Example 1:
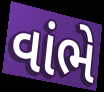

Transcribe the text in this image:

વાંભે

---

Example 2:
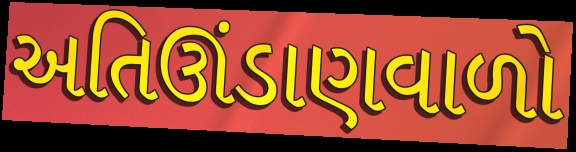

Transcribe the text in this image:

અતિઊંડાણવાળો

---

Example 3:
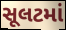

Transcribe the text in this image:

સૂલટમાં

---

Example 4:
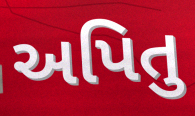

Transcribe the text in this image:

અપિતુ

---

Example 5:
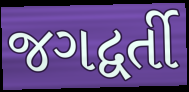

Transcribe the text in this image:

જગદ્વર્તી